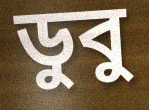
ডুবু